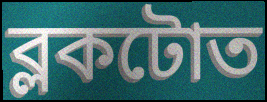
ব্লকটোত